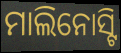
ମାଲିନୋସ୍ଟି